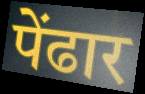
पेंढार